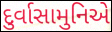
દુર્વાસામુનિએ